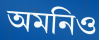
অমনিও